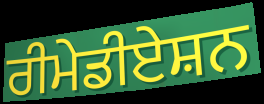
ਰੀਮੇਡੀਏਸ਼ਨ